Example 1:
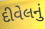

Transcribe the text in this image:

દીવેલનું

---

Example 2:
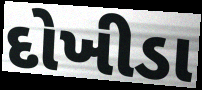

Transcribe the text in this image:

દોખીડા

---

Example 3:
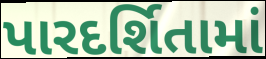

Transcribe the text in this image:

પારદર્શિતામાં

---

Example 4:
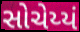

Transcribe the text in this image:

સોચેય્યં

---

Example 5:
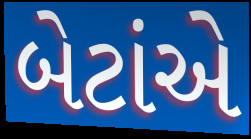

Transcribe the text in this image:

બેટાંએ